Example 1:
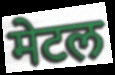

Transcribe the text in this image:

मेटल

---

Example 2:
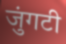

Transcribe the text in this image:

जुंगटी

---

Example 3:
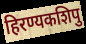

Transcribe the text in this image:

हिरण्यकशिपु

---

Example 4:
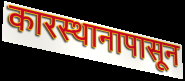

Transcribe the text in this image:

कारस्थानापासून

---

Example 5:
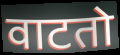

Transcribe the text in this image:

वाटतो